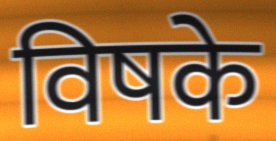
विषके